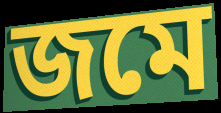
জমে